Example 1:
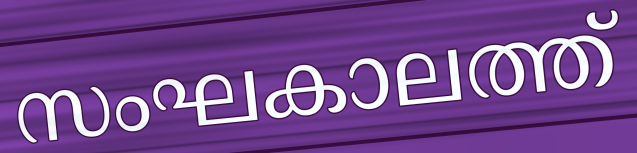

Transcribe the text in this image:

സംഘകാലത്ത്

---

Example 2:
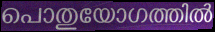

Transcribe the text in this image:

പൊതുയോഗത്തിൽ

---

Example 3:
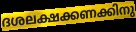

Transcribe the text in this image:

ദശലക്ഷക്കണക്കിനു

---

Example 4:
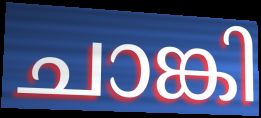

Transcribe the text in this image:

ചാങ്കി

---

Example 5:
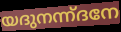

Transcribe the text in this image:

യദുനന്ന്ദനേ